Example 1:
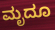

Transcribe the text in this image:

ಮೃದೂ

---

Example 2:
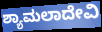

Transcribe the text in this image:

ಶ್ಯಾಮಲಾದೇವಿ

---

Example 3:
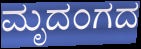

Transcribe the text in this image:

ಮೃದಂಗದ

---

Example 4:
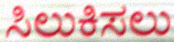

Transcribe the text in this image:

ಸಿಲುಕಿಸಲು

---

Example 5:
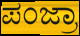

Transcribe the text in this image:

ಪಂಜ್ರಾ